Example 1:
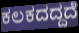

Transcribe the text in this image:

ಕಲಕದದ್ದದೆ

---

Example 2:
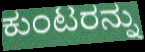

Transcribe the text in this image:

ಕುಂಟರನ್ನು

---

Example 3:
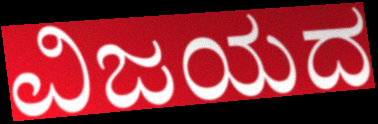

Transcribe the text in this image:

ವಿಜಯದ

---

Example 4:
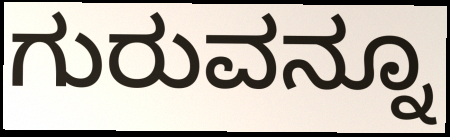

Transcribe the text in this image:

ಗುರುವನ್ನೂ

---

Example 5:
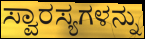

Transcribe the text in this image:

ಸ್ವಾರಸ್ಯಗಳನ್ನು